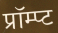
प्रॉम्प्ट